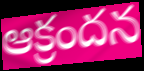
ఆక్రందన